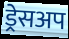
ड्रेसअप